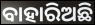
ବାହାରିଅଛି